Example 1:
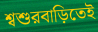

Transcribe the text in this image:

শ্বশুরবাড়িতেই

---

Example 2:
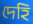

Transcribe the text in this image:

দেহি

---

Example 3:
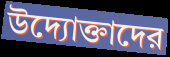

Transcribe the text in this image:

উদ্যোক্তাদের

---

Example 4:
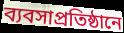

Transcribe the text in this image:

ব্যবসাপ্রতিষ্ঠানে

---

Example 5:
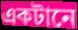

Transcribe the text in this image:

একটানে